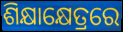
ଶିକ୍ଷାକ୍ଷେତ୍ରରେ